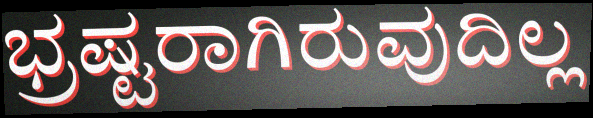
ಭ್ರಷ್ಟರಾಗಿರುವುದಿಲ್ಲ